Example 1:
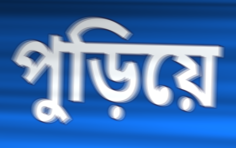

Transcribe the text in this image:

পুড়িয়ে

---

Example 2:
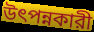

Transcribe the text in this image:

উৎপন্নকারী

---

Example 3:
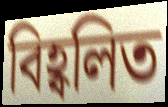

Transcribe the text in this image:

বিহ্বলিত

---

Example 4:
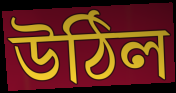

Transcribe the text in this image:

উঠিল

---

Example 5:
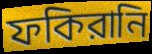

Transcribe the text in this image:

ফকিরানি